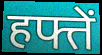
हफ्तें